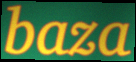
baza